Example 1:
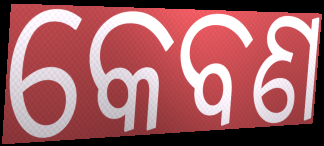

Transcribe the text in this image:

କେବଣ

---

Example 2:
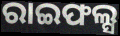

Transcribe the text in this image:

ରାଇଫଲ୍ସ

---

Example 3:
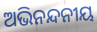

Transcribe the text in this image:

ଅଭିନନ୍ଦନୀୟ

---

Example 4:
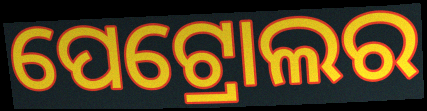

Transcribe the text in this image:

ପେଟ୍ରୋଲର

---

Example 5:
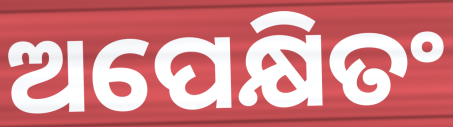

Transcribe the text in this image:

ଅପେକ୍ଷିତଂ